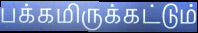
பக்கமிருக்கட்டும்